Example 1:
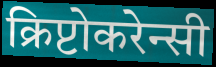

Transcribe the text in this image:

क्रिप्टोकरेन्सी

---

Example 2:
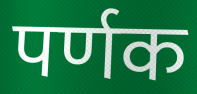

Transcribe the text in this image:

पर्णक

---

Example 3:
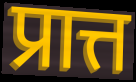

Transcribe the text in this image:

प्रात्त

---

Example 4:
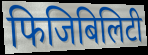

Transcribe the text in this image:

फिजिबिलिटी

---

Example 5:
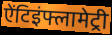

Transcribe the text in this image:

ऐंटिइंफ्लामेट्री